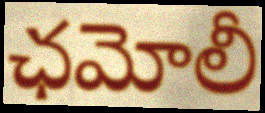
ఛమోలీ